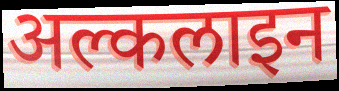
अल्कलाइन